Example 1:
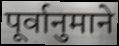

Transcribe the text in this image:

पूर्वानुमाने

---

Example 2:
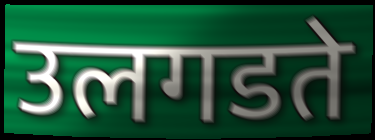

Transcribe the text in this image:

उलगडते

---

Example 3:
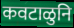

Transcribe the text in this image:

कवटाळुनि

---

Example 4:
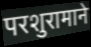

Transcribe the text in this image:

परशुरामाने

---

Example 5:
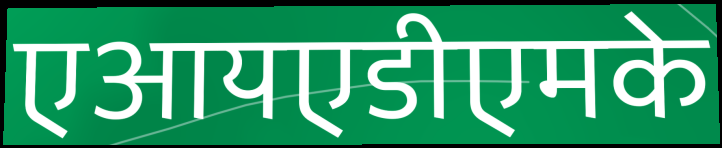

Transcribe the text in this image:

एआयएडीएमके